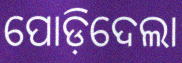
ପୋଡ଼ିଦେଲା